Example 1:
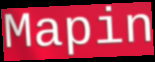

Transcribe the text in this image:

Mapin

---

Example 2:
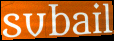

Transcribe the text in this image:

subail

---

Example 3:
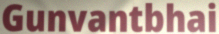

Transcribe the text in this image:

Gunvantbhai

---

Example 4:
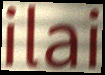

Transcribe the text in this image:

ilai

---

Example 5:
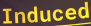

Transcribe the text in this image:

Induced